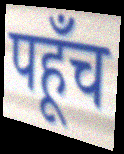
पहूँच